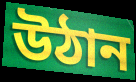
উঠান